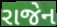
રાજેન